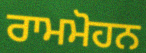
ਰਾਮਮੋਹਨ